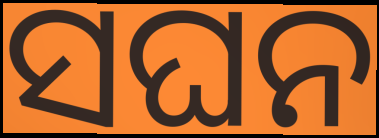
ସଘନ